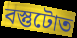
বস্তুটোত